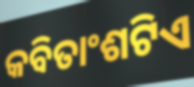
କବିତାଂଶଟିଏ